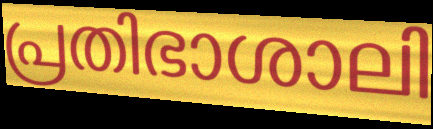
പ്രതിഭാശാലി